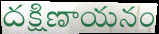
దక్షిణాయనం